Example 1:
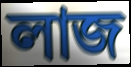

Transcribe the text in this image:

লাজ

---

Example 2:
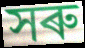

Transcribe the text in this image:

সৰু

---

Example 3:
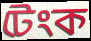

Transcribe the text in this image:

টেংক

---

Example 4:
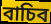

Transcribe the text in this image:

বাচিব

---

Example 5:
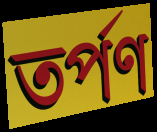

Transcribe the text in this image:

তৰ্পণ